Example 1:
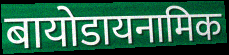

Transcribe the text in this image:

बायोडायनामिक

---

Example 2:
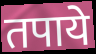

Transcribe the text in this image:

तपाये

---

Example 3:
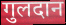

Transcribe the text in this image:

गुलदान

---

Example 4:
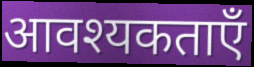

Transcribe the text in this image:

आवश्यकताएँ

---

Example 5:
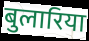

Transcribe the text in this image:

बुलारिया